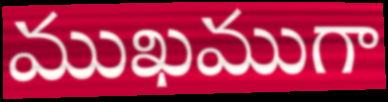
ముఖముగా